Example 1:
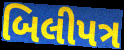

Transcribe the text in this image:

બિલીપત્ર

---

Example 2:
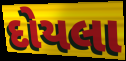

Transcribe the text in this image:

દોયલા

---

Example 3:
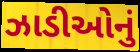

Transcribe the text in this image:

ઝાડીઓનું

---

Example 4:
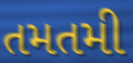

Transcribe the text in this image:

તમતમી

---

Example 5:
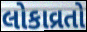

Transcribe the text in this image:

લોકાવ્રતો